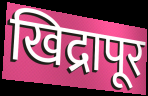
खिद्रापूर